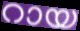
റായ